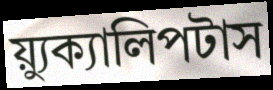
য়্যুক্যালিপটাস